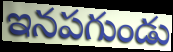
ఇనపగుండు